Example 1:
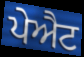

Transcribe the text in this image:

ਪੇਐਟ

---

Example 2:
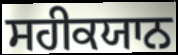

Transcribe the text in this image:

ਸਹੀਕਯਾਨ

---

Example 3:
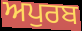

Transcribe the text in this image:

ਅਪੁਰਬ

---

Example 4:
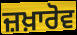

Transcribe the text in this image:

ਜ਼ਖ਼ਾਰੋਵ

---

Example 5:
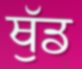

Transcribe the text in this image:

ਥੁੱਡ